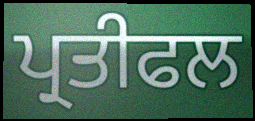
ਪ੍ਰਤੀਫਲ